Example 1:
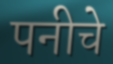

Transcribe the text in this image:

पनीचे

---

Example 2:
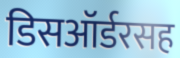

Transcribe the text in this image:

डिसऑर्डरसह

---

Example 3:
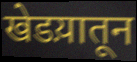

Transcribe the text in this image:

खेडय़ातून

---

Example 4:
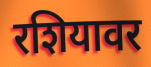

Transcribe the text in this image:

रशियावर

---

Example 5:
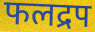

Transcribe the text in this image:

फलद्रप